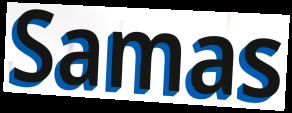
Samas